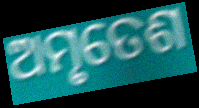
ଅମୃତେଶ